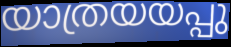
യാത്രയയപ്പു